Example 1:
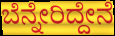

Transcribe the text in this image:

ಬೆನ್ನೇರಿದ್ದೇನೆ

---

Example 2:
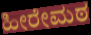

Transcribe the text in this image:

ಹೀರೇಮಠ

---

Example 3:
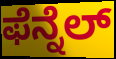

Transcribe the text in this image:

ಫೆನ್ನೆಲ್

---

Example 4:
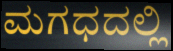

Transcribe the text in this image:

ಮಗಧದಲ್ಲಿ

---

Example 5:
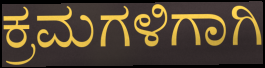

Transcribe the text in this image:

ಕ್ರಮಗಳಿಗಾಗಿ